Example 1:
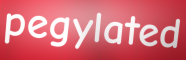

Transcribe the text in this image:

pegylated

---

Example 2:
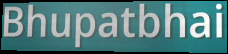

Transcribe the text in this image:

Bhupatbhai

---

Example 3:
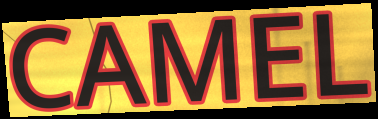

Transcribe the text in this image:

CAMEL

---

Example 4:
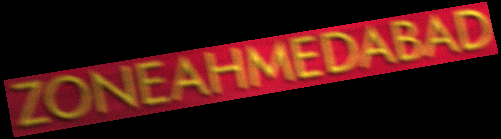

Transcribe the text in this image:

ZONEAHMEDABAD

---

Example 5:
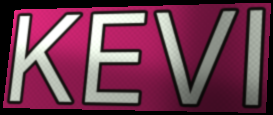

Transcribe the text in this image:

KEVI